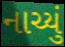
નાચ્યું